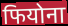
फियोना